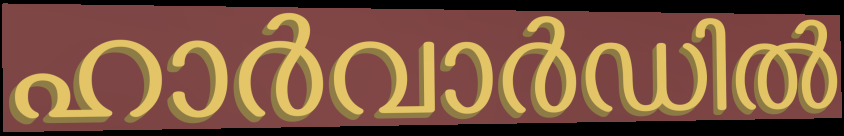
ഹാർവാർഡിൽ